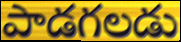
పాడగలడు